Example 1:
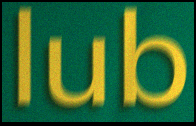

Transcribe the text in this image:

lub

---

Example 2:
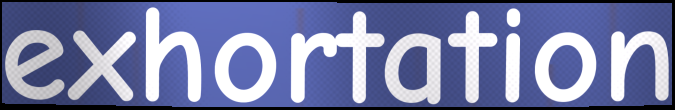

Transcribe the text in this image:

exhortation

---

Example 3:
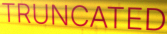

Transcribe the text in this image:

TRUNCATED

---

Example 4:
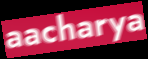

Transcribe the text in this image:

aacharya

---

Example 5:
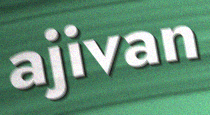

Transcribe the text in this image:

ajivan